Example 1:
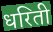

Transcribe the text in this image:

धरिती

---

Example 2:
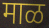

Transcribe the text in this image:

माळ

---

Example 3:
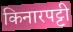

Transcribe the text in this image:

किनारपट्टी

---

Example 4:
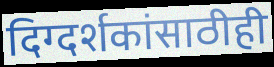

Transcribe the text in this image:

दिग्दर्शकांसाठीही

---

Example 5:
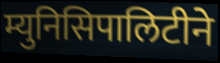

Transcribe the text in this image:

म्युनिसिपालिटीने